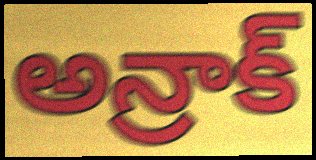
అన్రాక్